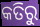
କତିରୁ